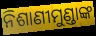
ନିଶାଣୀମୁଣ୍ଡାଙ୍କ